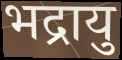
भद्रायु